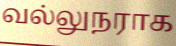
வல்லுநராக